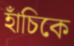
হাঁচিকে